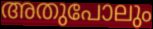
അതുപോലും